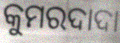
କୁମରଦାଦା